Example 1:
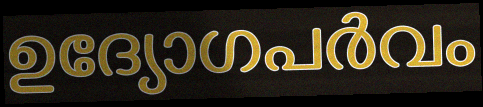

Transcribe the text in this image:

ഉദ്യോഗപർവം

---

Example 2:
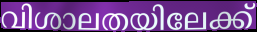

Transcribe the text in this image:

വിശാലതയിലേക്ക്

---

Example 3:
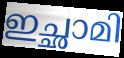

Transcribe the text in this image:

ഇച്ഛാമി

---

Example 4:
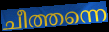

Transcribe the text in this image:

ചീത്തന്നെ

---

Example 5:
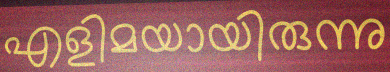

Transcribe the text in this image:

എളിമയായിരുന്നു